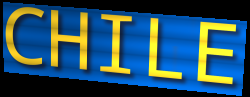
CHILE